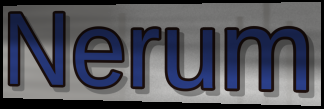
Nerum